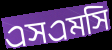
এসএমসি